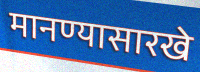
मानण्यासारखे